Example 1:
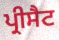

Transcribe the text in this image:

ਪ੍ਰੀਸੈਟ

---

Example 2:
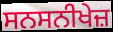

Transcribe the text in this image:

ਸਨਸਨੀਖੇਜ਼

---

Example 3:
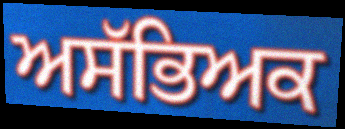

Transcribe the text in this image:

ਅਸੱਭਿਅਕ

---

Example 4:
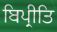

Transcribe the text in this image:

ਬਿਪ੍ਰੀਤਿ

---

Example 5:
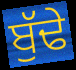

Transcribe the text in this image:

ਬੁੱਢੇ